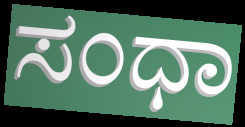
ಸಂಧಾ